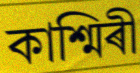
কাশ্মিৰী